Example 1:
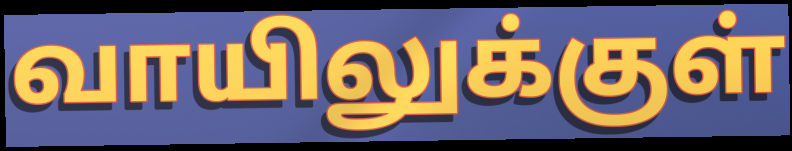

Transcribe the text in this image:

வாயிலுக்குள்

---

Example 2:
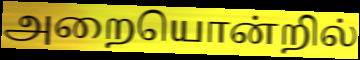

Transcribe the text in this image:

அறையொன்றில்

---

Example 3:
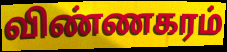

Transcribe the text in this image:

விண்ணகரம்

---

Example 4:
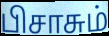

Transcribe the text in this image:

பிசாசும்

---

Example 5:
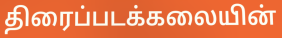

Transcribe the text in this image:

திரைப்படக்கலையின்